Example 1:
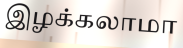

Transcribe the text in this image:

இழக்கலாமா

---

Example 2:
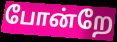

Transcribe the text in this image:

போன்றே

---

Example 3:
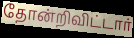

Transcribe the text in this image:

தோன்றிவிட்டார்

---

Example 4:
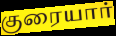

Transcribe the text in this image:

குரையார்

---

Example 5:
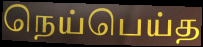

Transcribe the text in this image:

நெய்பெய்த